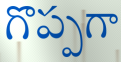
గొప్పగా